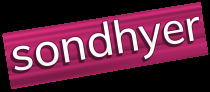
sondhyer